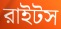
রাইটস